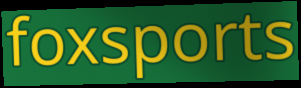
foxsports